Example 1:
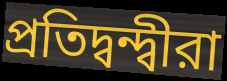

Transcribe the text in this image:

প্রতিদ্বন্দ্বীরা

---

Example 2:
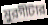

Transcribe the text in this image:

মুরগীটার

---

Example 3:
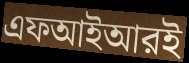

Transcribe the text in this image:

এফআইআরই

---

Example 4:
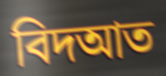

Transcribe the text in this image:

বিদআত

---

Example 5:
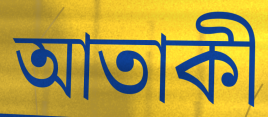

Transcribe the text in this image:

আতাকী